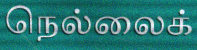
நெல்லைக்